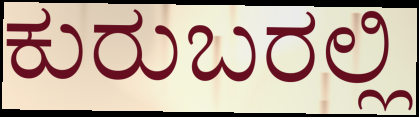
ಕುರುಬರಲ್ಲಿ